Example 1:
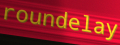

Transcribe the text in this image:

roundelay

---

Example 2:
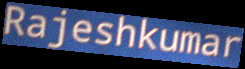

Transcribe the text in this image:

Rajeshkumar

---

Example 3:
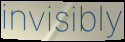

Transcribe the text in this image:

invisibly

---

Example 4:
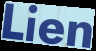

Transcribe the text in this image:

Lien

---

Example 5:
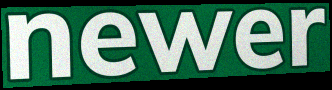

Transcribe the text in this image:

newer